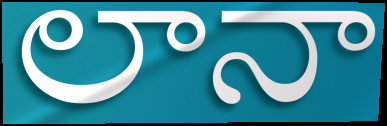
లానా